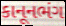
કાનૂનભંગ